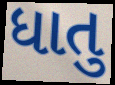
ધાતુ